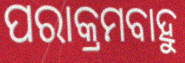
ପରାକ୍ରମବାହୁ